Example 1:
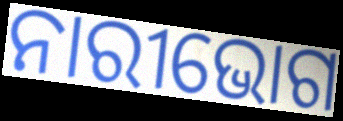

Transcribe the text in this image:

ନାରୀଭୋଗ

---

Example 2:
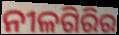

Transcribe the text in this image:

ନୀଳଗିରିର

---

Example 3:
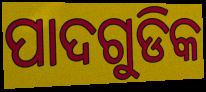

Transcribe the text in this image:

ପାଦଗୁଡିକ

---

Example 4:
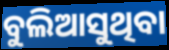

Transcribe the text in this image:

ବୁଲିଆସୁଥିବା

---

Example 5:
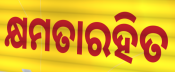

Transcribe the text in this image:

କ୍ଷମତାରହିତ